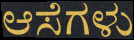
ಆಸೆಗಳು